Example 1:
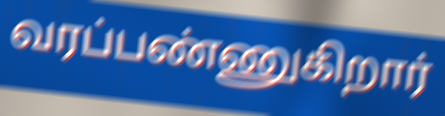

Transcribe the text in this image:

வரப்பண்ணுகிறார்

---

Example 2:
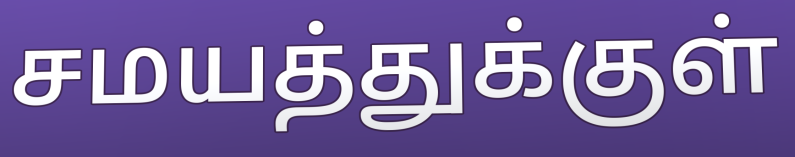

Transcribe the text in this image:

சமயத்துக்குள்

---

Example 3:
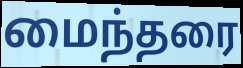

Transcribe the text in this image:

மைந்தரை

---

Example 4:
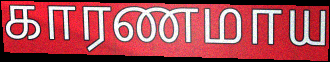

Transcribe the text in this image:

காரணமாய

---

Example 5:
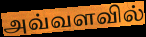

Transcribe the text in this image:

அவ்வளவில்